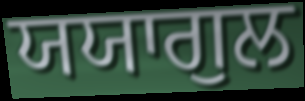
ਯਯਾਗੁਲ